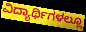
ವಿದ್ಯಾರ್ಥಿಗಳಲ್ಲೂ